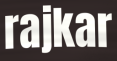
rajkar